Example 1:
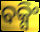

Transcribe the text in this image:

ବକ୍ସିଂ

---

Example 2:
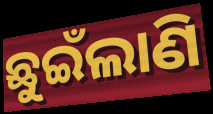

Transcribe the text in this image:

ଛୁଇଁଲାଣି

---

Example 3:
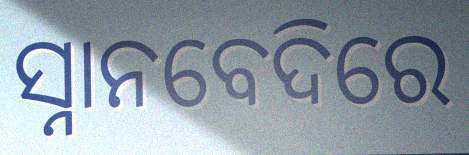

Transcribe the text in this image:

ସ୍ନାନବେଦିରେ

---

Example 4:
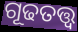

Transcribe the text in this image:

ଗୂଢତତ୍ତ୍ୱ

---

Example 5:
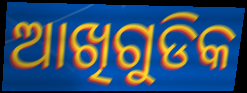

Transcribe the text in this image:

ଆଖିଗୁଡିକ